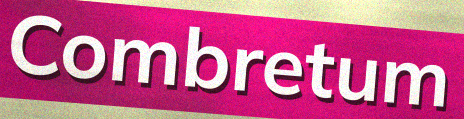
Combretum